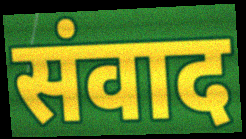
संवाद